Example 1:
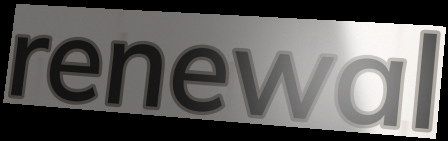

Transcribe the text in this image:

renewal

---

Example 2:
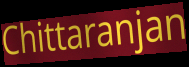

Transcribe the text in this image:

Chittaranjan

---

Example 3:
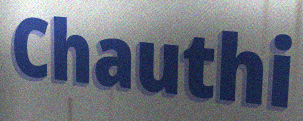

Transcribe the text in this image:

Chauthi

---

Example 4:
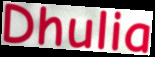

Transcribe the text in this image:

Dhulia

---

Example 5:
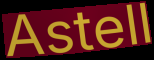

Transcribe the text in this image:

Astell